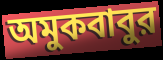
অমুকবাবুর